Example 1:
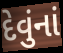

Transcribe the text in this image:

દેવુંનાં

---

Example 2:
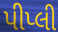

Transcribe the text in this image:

પીપ્લી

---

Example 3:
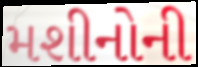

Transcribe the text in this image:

મશીનોની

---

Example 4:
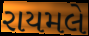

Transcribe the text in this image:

રાયમલે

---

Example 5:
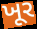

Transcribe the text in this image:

ખૂર